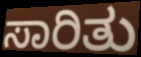
ಸಾರಿತು